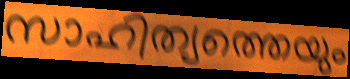
സാഹിത്യത്തെയും